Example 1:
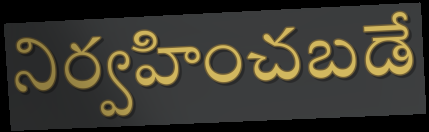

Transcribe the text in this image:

నిర్వహించబడే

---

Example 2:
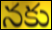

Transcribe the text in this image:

నకు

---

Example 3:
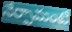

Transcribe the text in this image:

నేర్పామంటే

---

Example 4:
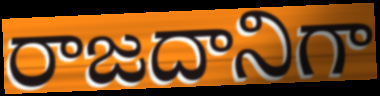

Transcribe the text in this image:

రాజదానిగా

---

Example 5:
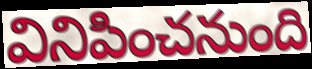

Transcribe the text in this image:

వినిపించనుంది